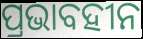
ପ୍ରଭାବହୀନ